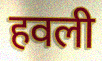
हवली